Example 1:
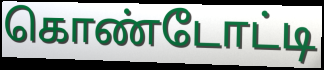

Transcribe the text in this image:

கொண்டோட்டி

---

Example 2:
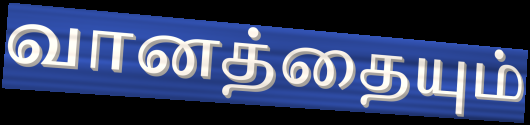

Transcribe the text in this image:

வானத்தையும்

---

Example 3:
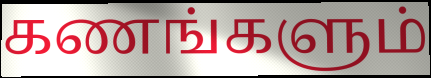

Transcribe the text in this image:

கணங்களும்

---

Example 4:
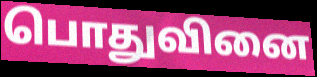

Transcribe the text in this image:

பொதுவினை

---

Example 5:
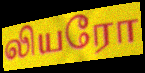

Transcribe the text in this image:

லியரோ